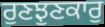
ਰੁਣਝੁਣਕਾਰੁ